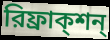
রিফ্রাক্শন্